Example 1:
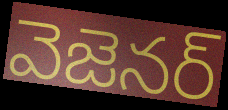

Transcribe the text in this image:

వెజెనర్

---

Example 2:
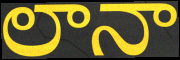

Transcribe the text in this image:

లానా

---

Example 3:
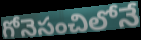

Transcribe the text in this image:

గోనెసంచిలోనే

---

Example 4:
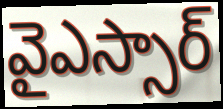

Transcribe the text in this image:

వైఎస్సార్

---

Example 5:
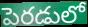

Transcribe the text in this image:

పెరడులో